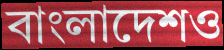
বাংলাদেশও